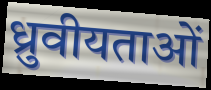
ध्रुवीयताओं